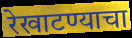
रेखाटण्याचा